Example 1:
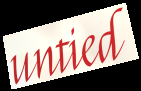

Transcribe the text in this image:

untied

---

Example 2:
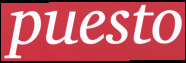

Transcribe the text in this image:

puesto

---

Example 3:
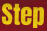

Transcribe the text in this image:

Step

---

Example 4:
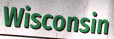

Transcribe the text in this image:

Wisconsin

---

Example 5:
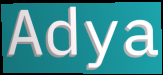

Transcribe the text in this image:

Adya